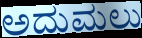
ಅದುಮಲು